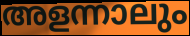
അളന്നാലും